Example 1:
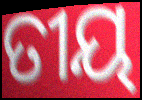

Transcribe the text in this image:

ତୀୟ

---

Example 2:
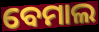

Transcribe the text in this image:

ବେମାଲ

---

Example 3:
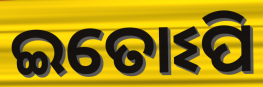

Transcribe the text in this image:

ଇତୋଽପି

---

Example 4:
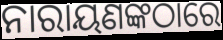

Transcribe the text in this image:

ନାରାୟଣଙ୍କଠାରେ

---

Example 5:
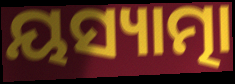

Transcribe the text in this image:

ୟସ୍ୟାତ୍ମା